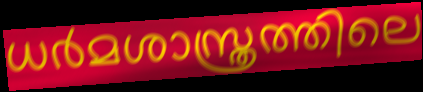
ധർമശാസ്ത്രത്തിലെ